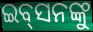
ଇବ୍‌ସନଙ୍କୁ